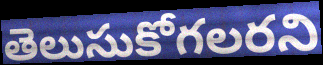
తెలుసుకోగలరని